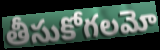
తీసుకోగలమో